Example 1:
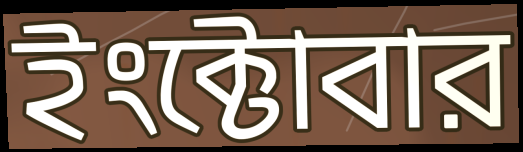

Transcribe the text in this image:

ইংক্টোবার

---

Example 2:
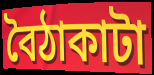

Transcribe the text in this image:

বৈঠাকাটা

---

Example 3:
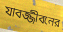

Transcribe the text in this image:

যাবজ্জীবনের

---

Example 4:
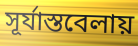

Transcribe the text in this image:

সূর্যাস্তবেলায়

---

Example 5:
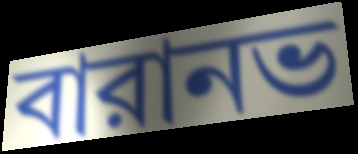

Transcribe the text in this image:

বারানভ